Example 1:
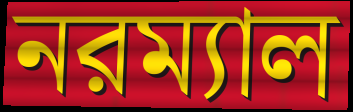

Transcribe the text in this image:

নরম্যাল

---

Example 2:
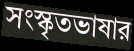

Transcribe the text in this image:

সংস্কৃতভাষার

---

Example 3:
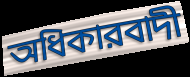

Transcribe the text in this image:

অধিকারবাদী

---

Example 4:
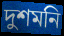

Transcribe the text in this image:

দুশমনি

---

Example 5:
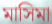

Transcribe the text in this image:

মাসিমা